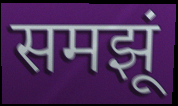
समझूं